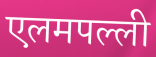
एलमपल्ली